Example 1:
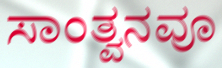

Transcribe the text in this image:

ಸಾಂತ್ವನವೂ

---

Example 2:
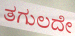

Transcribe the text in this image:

ತಗುಲದೇ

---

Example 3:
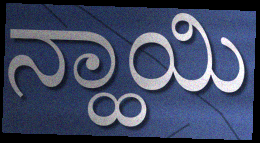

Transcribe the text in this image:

ನ್ಹಾಯಿ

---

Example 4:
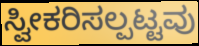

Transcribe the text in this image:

ಸ್ವೀಕರಿಸಲ್ಪಟ್ಟವು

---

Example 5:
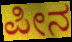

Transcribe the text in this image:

ಪೀನ